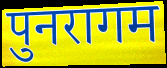
पुनरागम